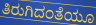
ತಿರುಗಿದಂತೆಯೂ